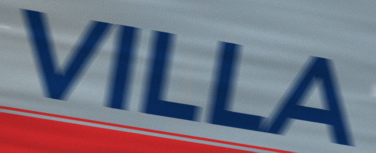
VILLA